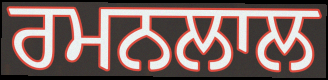
ਰਮਨਲਾਲ